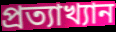
প্ৰত্যাখ্যান